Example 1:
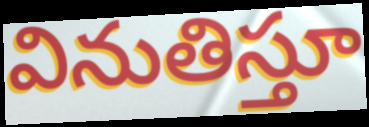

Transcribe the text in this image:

వినుతిస్తూ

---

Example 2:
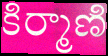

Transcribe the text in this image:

కిర్మాణి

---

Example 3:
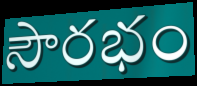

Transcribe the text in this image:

సౌరభం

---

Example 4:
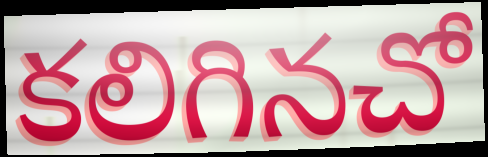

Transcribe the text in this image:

కలిగినచో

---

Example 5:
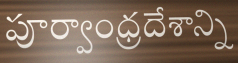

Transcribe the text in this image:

పూర్వాంధ్రదేశాన్ని